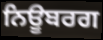
ਨਿਊਬਰਗ